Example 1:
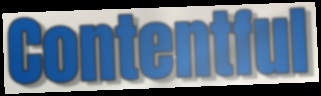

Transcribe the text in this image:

Contentful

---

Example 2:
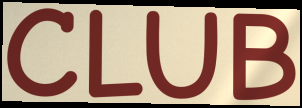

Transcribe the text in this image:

CLUB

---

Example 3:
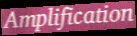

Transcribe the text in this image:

Amplification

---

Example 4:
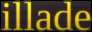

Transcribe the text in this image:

illade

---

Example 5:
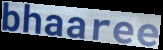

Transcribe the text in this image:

bhaaree